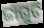
ଜାଗୁଚି